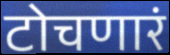
टोचणारं